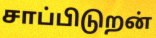
சாப்பிடுறன்